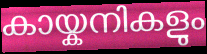
കായ്കനികളും